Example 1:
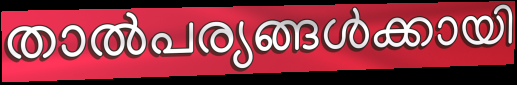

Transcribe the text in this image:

താൽപര്യങ്ങൾക്കായി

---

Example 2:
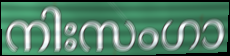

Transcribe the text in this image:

നിഃസംഗാ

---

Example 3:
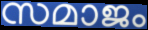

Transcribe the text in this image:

സമാജം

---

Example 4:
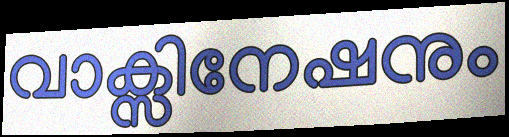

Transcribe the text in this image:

വാക്സിനേഷനും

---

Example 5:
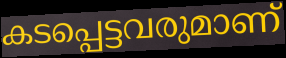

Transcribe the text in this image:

കടപ്പെട്ടവരുമാണ്